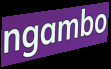
ngambo